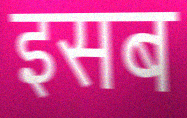
इसब